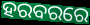
ହରବରରେ